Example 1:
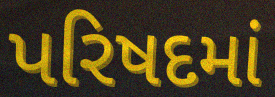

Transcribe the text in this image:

પરિષદમાં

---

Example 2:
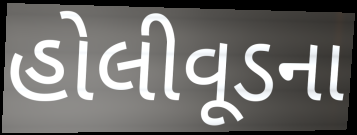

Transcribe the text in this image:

હોલીવૂડના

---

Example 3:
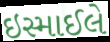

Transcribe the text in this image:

ઇસ્માઈલે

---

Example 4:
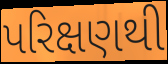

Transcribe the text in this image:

પરિક્ષણથી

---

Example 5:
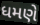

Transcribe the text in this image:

ધમણે